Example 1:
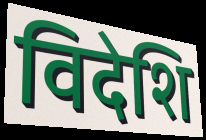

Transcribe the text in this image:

विदेशि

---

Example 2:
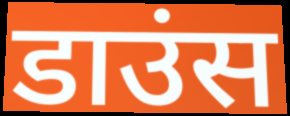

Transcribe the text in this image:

डाउंस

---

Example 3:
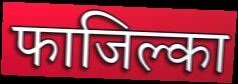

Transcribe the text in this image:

फाजिल्का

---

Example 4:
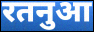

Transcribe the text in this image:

रतनुआ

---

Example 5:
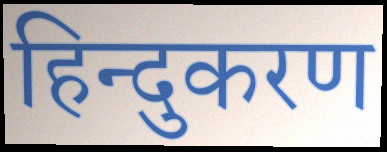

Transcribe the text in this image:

हिन्दुकरण